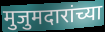
मुजुमदारांच्या